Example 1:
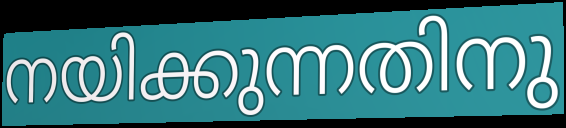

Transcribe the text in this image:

നയിക്കുന്നതിനു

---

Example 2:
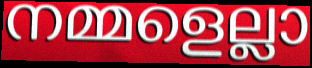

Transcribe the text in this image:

നമ്മളെല്ലാ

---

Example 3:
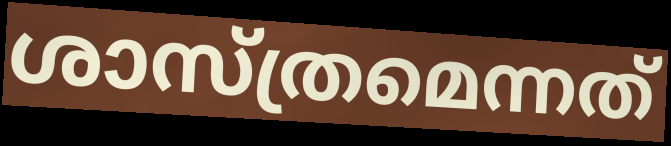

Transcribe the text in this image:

ശാസ്ത്രമെന്നത്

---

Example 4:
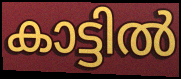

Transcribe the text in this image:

കാട്ടിൽ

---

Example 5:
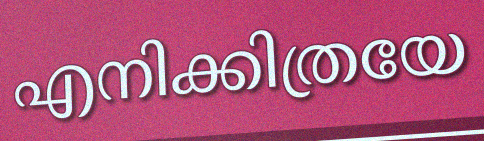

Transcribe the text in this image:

എനിക്കിത്രയേ